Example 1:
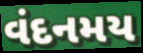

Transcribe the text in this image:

વંદનમય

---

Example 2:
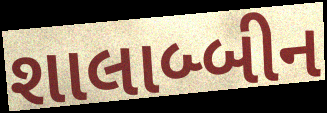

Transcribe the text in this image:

શાલાબ્બીન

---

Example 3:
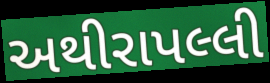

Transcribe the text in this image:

અથીરાપલ્લી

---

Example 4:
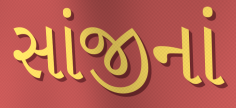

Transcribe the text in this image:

સાંજીનાં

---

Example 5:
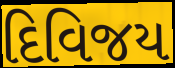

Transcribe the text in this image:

દિવિજય